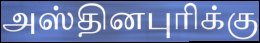
அஸ்தினபுரிக்கு